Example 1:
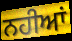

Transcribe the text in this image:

ਨਹੀਆਂ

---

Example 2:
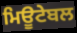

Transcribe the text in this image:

ਮਿਊਟੇਬਲ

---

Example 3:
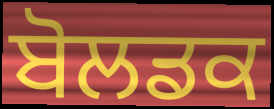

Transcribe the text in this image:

ਬੋਲਡਕ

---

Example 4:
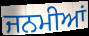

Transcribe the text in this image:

ਜਨਮੀਆਂ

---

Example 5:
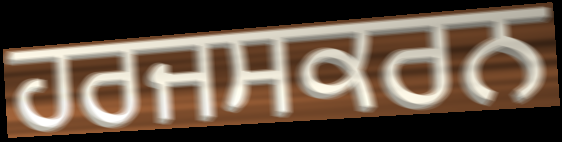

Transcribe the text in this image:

ਹਰਜਸਕਰਨ